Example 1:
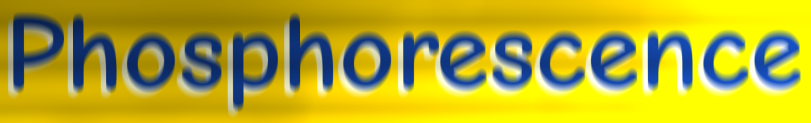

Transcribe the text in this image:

Phosphorescence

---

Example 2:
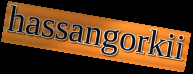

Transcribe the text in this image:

hassangorkii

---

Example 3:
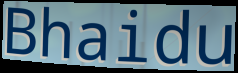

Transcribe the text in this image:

Bhaidu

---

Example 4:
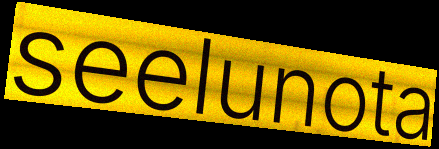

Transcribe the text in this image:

seelunota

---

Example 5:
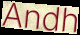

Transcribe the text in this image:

Andh